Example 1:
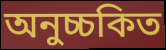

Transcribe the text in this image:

অনুচ্চকিত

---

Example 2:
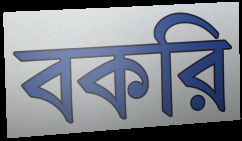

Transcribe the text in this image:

বকরি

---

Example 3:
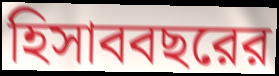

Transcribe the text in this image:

হিসাববছরের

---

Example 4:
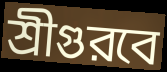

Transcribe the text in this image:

শ্রীগুরবে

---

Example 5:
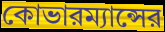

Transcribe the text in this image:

কোভারম্যান্সের